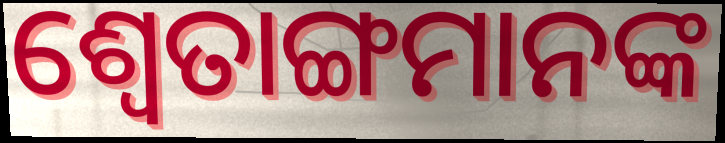
ଶ୍ଵେତାଙ୍ଗମାନଙ୍କ